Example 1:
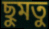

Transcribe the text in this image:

ছুমতু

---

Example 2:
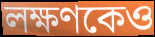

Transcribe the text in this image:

লক্ষণকেও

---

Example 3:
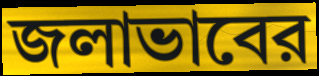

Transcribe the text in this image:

জলাভাবের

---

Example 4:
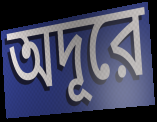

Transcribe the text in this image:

অদূরে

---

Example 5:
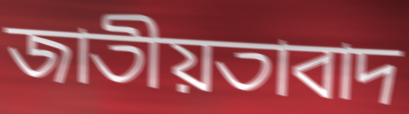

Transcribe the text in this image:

জাতীয়তাবাদ